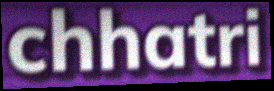
chhatri